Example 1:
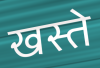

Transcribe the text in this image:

खस्ते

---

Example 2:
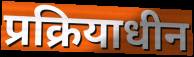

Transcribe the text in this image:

प्रक्रियाधीन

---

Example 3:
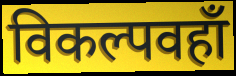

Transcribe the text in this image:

विकल्पवहाँ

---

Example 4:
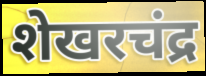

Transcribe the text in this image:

शेखरचंद्र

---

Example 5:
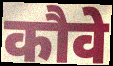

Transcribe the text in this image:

कौवे